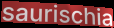
saurischia